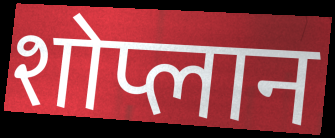
शोप्लान